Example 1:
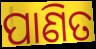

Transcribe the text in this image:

ପାଣିତ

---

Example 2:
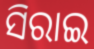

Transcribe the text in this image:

ସିରାଇ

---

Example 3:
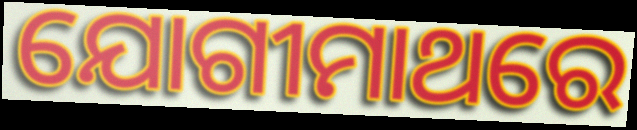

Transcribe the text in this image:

ଯୋଗୀମାଥରେ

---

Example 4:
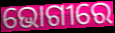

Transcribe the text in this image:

ଭୋଗୀରେ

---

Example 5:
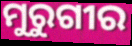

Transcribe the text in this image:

ମୁରୁଗୀର